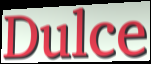
Dulce